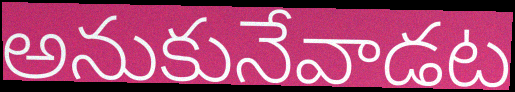
అనుకునేవాడట